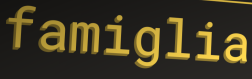
famiglia